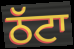
ਠੱਟਾ